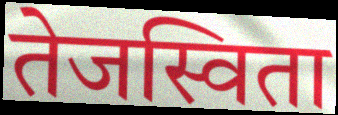
तेजस्विता